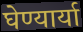
घेण्यार्या